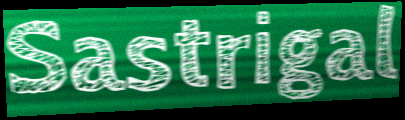
Sastrigal